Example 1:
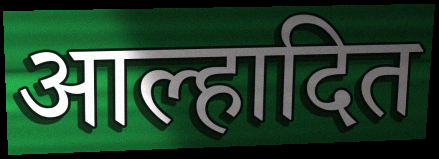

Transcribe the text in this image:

आल्हादित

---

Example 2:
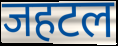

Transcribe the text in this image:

जहटल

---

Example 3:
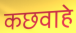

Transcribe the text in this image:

कछवाहे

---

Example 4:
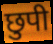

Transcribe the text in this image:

छुपी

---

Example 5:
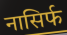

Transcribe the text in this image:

नासिर्फ